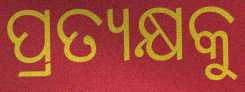
ପ୍ରତ୍ୟକ୍ଷକୁ